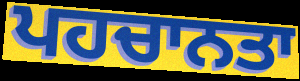
ਪਹਚਾਨਤਾ